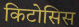
किटोसिस